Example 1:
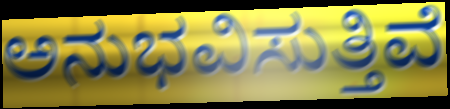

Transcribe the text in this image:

ಅನುಭವಿಸುತ್ತಿವೆ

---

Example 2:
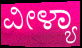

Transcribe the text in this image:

ವೀಳ್ಯಾ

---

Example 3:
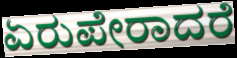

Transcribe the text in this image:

ಏರುಪೇರಾದರೆ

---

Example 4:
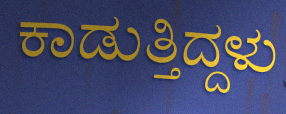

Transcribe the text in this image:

ಕಾಡುತ್ತಿದ್ದಳು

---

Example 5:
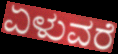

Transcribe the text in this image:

ಏಳುವರೆ